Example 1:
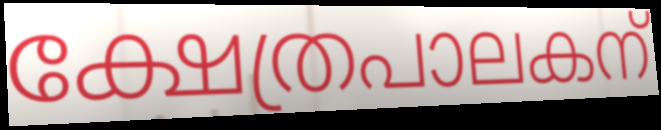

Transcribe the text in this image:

ക്ഷേത്രപാലകന്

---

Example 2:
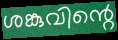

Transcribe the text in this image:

ശങ്കുവിന്റെ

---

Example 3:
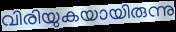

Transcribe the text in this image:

വിരിയുകയായിരുന്നു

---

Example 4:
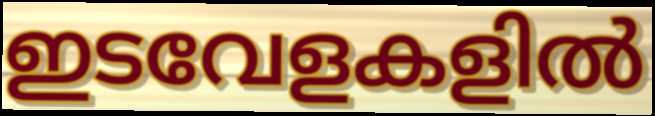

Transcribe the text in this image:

ഇടവേളകളിൽ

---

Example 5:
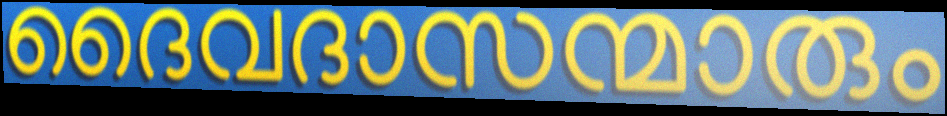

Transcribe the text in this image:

ദൈവദാസന്മാരും